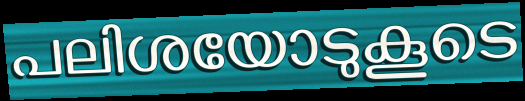
പലിശയോടുകൂടെ